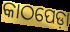
କାଠପେଡ଼ା